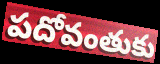
పదోవంతుకు